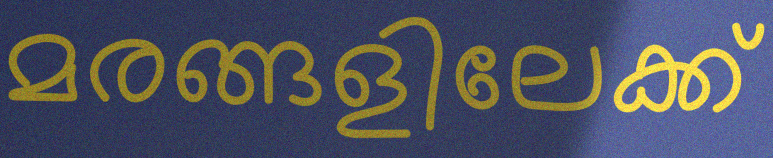
മരങ്ങളിലേക്ക്